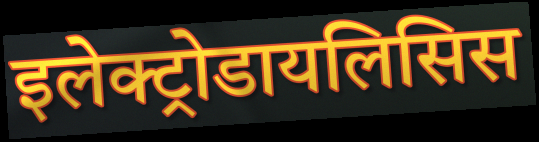
इलेक्ट्रोडायलिसिस